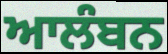
ਆਲੰਬਨ